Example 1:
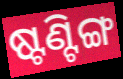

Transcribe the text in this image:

ଷ୍ଟଣ୍ଟିଙ୍ଗ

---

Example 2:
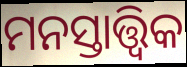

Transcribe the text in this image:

ମନସ୍ତାତ୍ତ୍ୱିକ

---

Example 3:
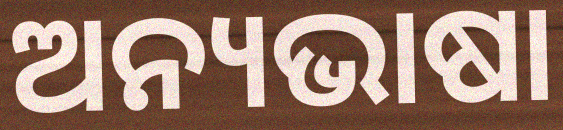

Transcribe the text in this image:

ଅନ୍ୟଭାଷା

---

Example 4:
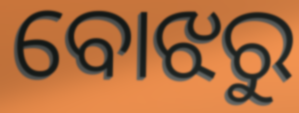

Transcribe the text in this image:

ବୋଝରୁ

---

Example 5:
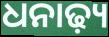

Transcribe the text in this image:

ଧନାଢ଼୍ୟ